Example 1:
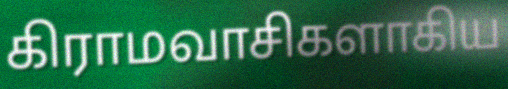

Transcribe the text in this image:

கிராமவாசிகளாகிய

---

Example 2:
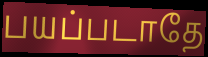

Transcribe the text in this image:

பயப்படாதே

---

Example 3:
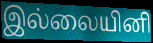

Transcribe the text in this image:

இல்லையினி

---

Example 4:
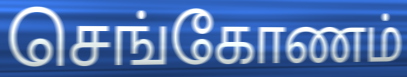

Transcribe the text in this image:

செங்கோணம்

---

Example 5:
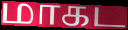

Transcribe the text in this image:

மாகட